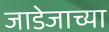
जाडेजाच्या